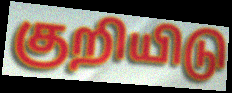
குறியிடு